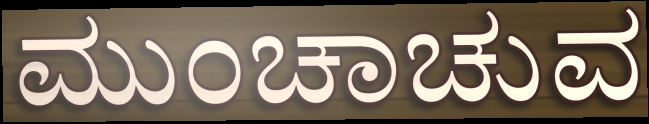
ಮುಂಚಾಚುವ